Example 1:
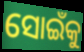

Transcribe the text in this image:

ସୋଇଁକୁ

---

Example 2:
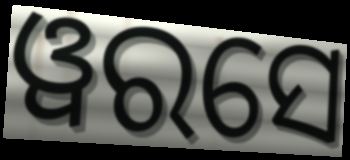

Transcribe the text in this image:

ୱରସେ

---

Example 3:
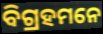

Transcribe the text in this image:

ବିଗ୍ରହମନେ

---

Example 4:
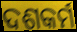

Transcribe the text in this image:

ଦଶକର୍ମ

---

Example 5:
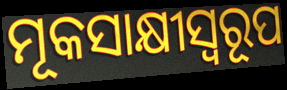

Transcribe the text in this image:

ମୂକସାକ୍ଷୀସ୍ୱରୂପ